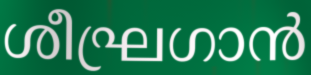
ശീഘ്രഗാൻ